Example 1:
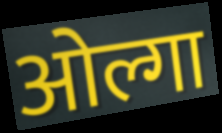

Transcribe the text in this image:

ओल्गा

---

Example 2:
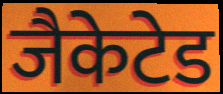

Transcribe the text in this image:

जैकेटेड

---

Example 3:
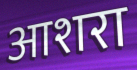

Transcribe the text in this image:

आशरा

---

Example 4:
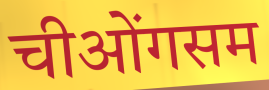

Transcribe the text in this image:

चीओंगसम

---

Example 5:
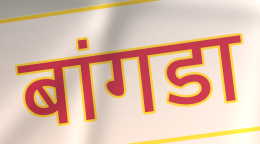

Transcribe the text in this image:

बांगडा